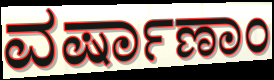
ವರ್ಷಾಣಾಂ